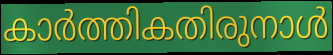
കാർത്തികതിരുനാൾ